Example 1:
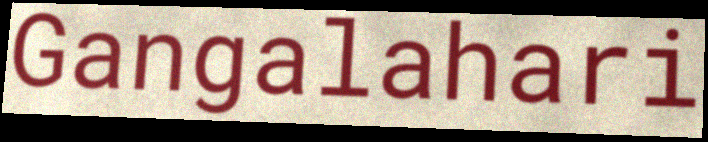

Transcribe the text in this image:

Gangalahari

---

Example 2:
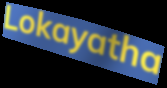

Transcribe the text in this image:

Lokayatha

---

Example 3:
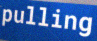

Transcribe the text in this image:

pulling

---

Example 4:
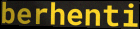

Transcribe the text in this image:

berhenti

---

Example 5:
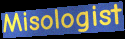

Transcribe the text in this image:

Misologist